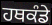
ਹਥਕੰਡੇ